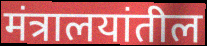
मंत्रालयांतील